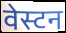
वेस्टन